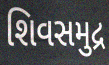
શિવસમુદ્ર